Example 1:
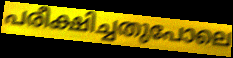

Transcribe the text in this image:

പരീക്ഷിച്ചതുപോലെ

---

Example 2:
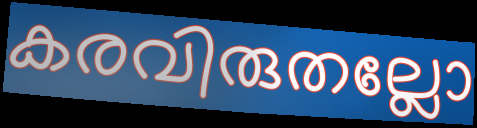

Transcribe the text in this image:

കരവിരുതല്ലോ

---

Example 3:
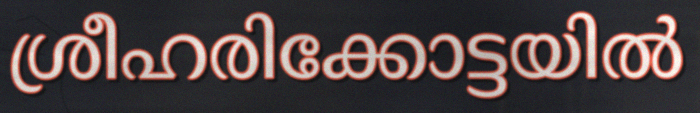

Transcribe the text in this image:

ശ്രീഹരിക്കോട്ടയിൽ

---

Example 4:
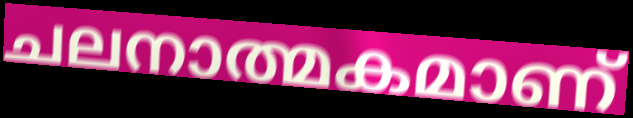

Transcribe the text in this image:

ചലനാത്മകമാണ്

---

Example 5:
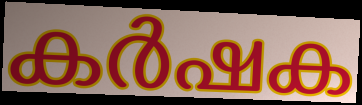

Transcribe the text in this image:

കർഷക